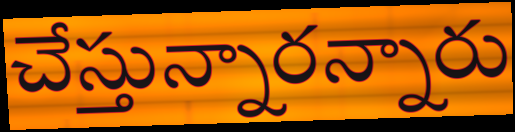
చేస్తున్నారన్నారు